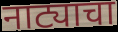
नाट्याचा